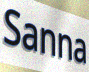
Sanna